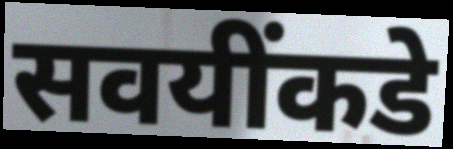
सवयींकडे